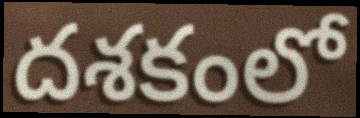
దశకంలో